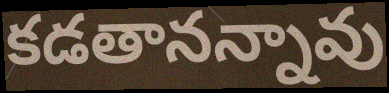
కడతానన్నావు